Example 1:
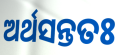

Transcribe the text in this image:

ଅର୍ଥସନ୍ତତଃ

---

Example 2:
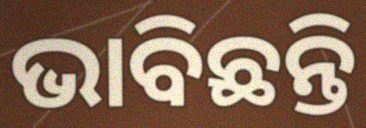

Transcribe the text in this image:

ଭାବିଛନ୍ତି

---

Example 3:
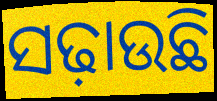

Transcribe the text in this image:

ସଢ଼ାଉଛି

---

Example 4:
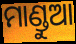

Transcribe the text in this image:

ମାଣ୍ଡୁଆ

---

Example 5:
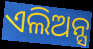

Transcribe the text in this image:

ଏଲିଅନ୍ସ